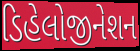
ડિહેલોજીનેશન